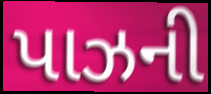
પાઝની